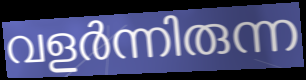
വളർന്നിരുന്ന